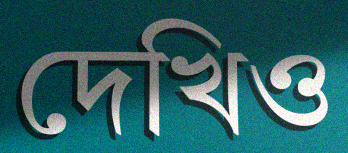
দেখিও